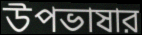
উপভাষার